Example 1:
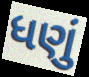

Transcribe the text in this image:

ધણું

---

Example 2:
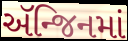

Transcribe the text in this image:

ઍન્જિનમાં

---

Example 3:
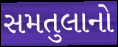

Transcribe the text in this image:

સમતુલાનો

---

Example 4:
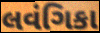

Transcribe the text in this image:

લવંગિકા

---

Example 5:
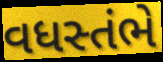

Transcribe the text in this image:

વધસ્તંભે